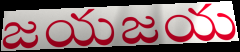
జయజయ